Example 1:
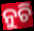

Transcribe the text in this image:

ନୁଚି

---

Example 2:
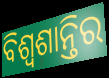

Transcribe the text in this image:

ବିଶ୍ୱଶାନ୍ତିର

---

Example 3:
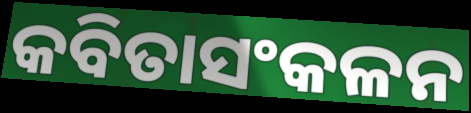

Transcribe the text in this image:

କବିତାସଂକଳନ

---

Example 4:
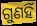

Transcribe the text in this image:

ଗୁଣହିଁ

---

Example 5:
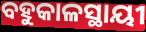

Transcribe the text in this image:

ବହୁକାଳସ୍ଥାୟୀ